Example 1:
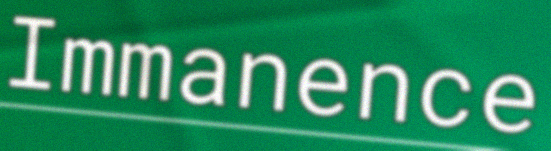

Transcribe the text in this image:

Immanence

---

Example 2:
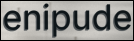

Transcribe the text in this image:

enipude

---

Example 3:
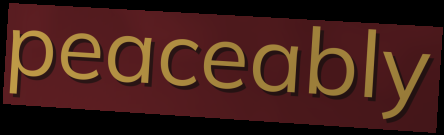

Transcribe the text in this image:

peaceably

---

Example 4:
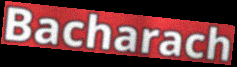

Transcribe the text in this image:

Bacharach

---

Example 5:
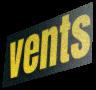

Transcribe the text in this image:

vents